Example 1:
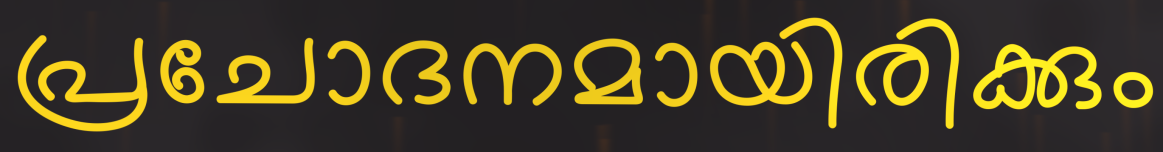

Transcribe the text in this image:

പ്രചോദനമായിരിക്കും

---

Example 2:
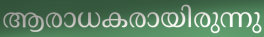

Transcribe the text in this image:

ആരാധകരായിരുന്നു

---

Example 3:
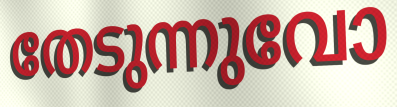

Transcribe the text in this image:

തേടുന്നുവോ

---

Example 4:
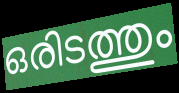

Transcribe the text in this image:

ഒരിടത്തും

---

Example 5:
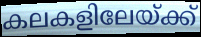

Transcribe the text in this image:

കലകളിലേയ്ക്ക്